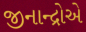
જીનાન્દ્રોએ